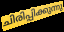
ചിരിപ്പിക്കുന്നു